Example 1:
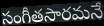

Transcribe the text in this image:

సంగీతసారమనే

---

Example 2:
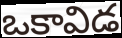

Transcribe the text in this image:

ఒకావిడ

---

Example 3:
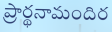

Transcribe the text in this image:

ప్రార్థనామందిర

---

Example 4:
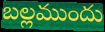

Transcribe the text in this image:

బల్లముందు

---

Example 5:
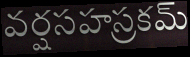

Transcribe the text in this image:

వర్షసహస్రకమ్